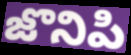
జొనిపి